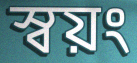
স্বয়ং